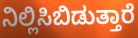
ನಿಲ್ಲಿಸಿಬಿಡುತ್ತಾರೆ